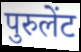
पुरुलेंट